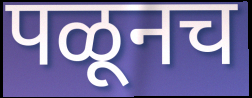
पळूनच